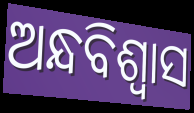
ଅନ୍ଧବିଶ୍ବାସ